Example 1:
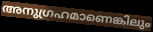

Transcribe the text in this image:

അനുഗ്രഹമാണെങ്കിലും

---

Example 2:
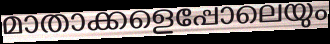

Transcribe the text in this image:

മാതാക്കളെപ്പോലെയും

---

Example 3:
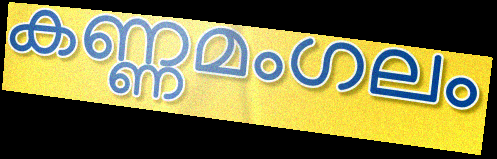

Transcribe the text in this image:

കണ്ണമംഗലം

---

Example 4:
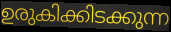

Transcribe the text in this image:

ഉരുകിക്കിടക്കുന്ന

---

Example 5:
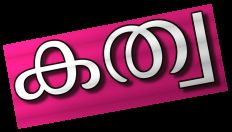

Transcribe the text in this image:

കത്വ